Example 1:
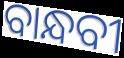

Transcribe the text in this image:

ବାନ୍ଧବୀ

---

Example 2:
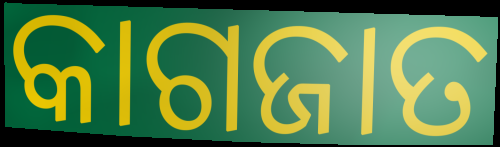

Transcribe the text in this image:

କାଗଜାତ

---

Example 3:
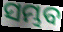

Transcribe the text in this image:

ସମ୍ଭବ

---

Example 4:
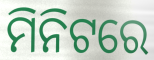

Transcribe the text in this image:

ମିନିଟରେ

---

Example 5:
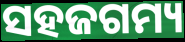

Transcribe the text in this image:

ସହଜଗମ୍ୟ